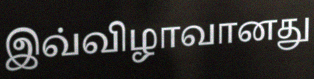
இவ்விழாவானது